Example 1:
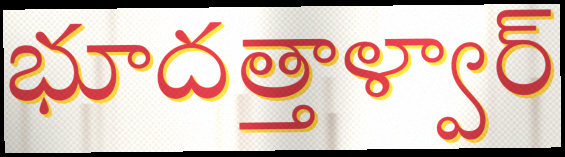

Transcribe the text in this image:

భూదత్తాళ్వార్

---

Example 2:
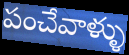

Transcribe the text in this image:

పంచేవాళ్ళు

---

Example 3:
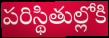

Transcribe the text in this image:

పరిస్థితుల్లోకి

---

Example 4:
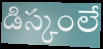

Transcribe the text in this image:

డిస్కంలే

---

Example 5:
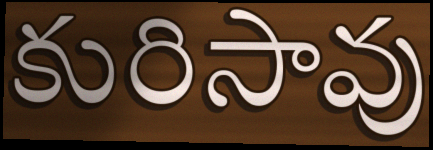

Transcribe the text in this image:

కురిసావు